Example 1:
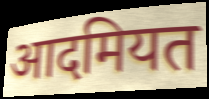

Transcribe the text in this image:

आदमियत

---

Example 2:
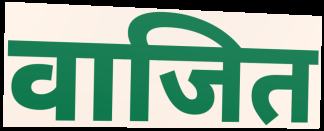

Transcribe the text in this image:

वाजित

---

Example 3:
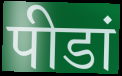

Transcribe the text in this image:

पीडां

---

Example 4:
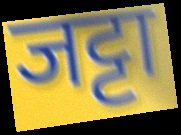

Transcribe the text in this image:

जट्टा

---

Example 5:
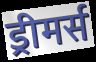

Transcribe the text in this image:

ड्रीमर्स